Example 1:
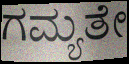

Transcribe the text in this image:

ಗಮ್ಯತೇ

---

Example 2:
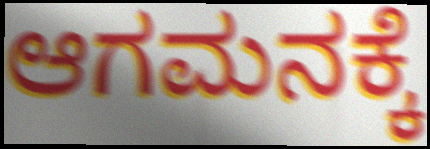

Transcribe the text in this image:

ಆಗಮನಕ್ಕೆ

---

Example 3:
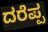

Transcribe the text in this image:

ದರೆಪ್ಪ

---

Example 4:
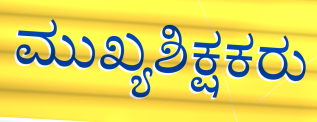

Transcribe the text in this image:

ಮುಖ್ಯಶಿಕ್ಷಕರು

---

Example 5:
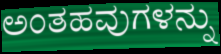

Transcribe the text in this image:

ಅಂತಹವುಗಳನ್ನು